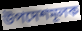
উপদেশমূলক